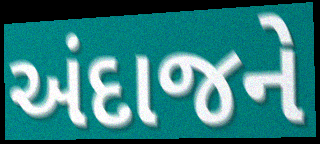
અંદાજને